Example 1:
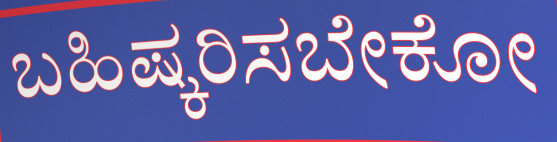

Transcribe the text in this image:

ಬಹಿಷ್ಕರಿಸಬೇಕೋ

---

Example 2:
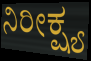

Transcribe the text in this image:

ನಿರೀಕ್ಷ್ಯ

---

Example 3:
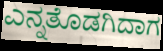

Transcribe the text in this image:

ಎನ್ನತೊಡಗಿದಾಗ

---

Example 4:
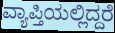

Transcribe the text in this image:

ವ್ಯಾಪ್ತಿಯಲ್ಲಿದ್ದರೆ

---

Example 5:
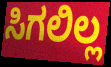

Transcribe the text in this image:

ಸಿಗಲಿಲ್ಲ